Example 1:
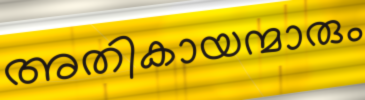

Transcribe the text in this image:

അതികായന്മാരും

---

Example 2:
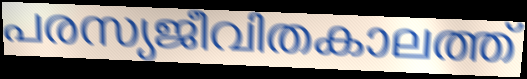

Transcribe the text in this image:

പരസ്യജീവിതകാലത്ത്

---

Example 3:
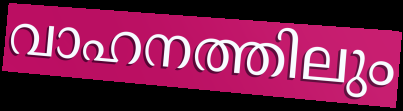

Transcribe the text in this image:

വാഹനത്തിലും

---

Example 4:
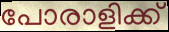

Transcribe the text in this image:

പോരാളിക്ക്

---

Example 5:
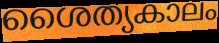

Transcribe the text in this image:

ശൈത്യകാലം